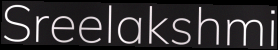
Sreelakshmi